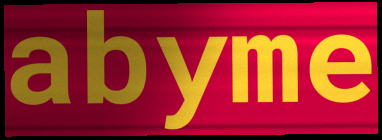
abyme